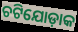
ଚଟିଯୋଡ଼ାକ